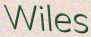
Wiles